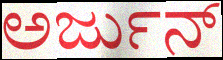
ಅರ್ಜುನ್